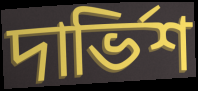
দার্ভিশ